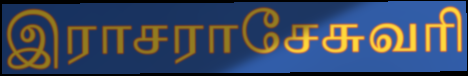
இராசராசேசுவரி